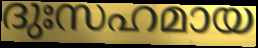
ദുഃസഹമായ